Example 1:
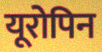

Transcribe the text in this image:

यूरोपिन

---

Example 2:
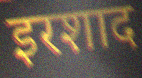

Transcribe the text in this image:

इरशाद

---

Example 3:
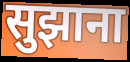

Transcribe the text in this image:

सुझाना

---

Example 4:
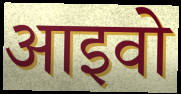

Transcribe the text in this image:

आइवो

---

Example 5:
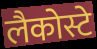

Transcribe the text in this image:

लैकोस्टे